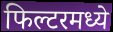
फिल्टरमध्ये